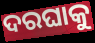
ଦରଘାକୁ